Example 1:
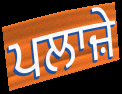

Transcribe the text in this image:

ਪਲਾਜ਼ੇ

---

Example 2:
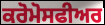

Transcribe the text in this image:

ਕਰੋਮੋਸਫੀਅਰ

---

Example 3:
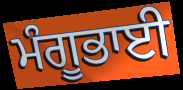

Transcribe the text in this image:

ਮੰਗੂਭਾਈ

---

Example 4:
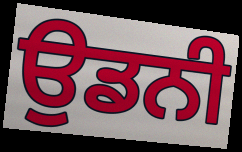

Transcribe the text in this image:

ਉਡਨੀ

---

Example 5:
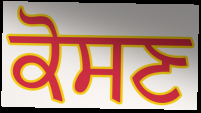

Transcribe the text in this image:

ਕੋਸਣ